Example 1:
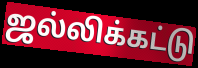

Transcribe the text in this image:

ஜல்லிக்கட்டு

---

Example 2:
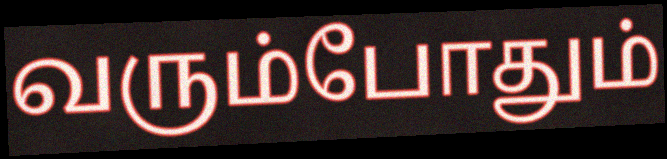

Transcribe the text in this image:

வரும்போதும்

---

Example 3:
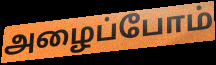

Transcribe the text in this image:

அழைப்போம்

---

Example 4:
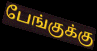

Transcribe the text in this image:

பேங்குக்கு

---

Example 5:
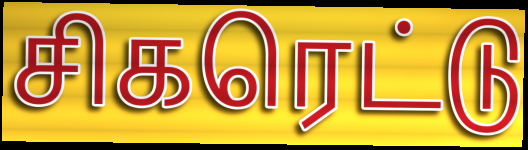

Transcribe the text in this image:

சிகரெட்டு